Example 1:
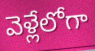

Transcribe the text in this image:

వెళ్లేలోగా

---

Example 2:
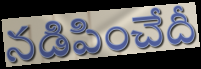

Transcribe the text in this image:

నడిపించేదీ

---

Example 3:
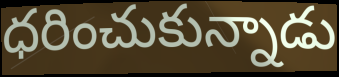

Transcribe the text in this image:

ధరించుకున్నాడు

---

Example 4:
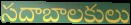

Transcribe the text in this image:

సదాబాలకులు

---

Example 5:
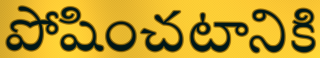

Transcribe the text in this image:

పోషించటానికి